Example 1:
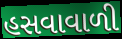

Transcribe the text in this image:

હસવાવાળી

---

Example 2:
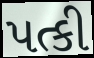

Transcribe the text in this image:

પત્કી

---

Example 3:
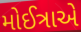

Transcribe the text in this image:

મોઈત્રાએ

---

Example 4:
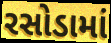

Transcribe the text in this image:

રસોડામાં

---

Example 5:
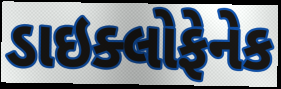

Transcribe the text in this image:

ડાઇક્લોફેનેક